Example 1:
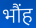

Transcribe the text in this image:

भौंह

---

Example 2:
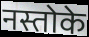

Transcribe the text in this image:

नस्तोके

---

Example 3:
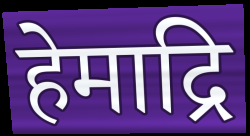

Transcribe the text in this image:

हेमाद्रि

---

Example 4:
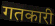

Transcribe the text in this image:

गतकारी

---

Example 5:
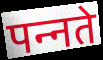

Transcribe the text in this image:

पन्नते